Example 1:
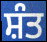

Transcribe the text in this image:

ਸ਼ੰਤ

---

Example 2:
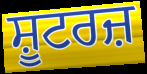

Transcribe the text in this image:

ਸ਼ੂਟਰਜ਼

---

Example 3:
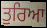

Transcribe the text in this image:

ਤੁਰਿਆ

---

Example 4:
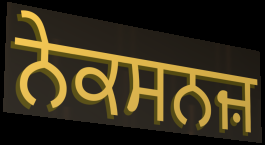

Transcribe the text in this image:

ਨੇਕਸਨਜ਼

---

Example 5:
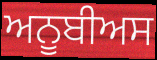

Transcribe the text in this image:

ਅਨੂਬੀਅਸ